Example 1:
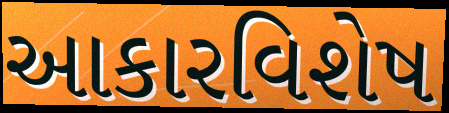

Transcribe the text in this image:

આકારવિશેષ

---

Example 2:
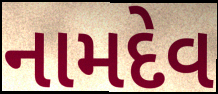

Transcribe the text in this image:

નામદેવ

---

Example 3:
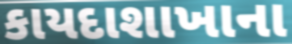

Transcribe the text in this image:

કાયદાશાખાના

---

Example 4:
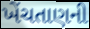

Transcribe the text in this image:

ખેંચતાણની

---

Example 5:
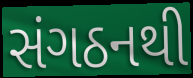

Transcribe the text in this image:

સંગઠનથી